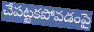
చేపట్టకపోవడంపై